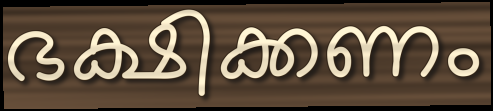
ഭക്ഷിക്കണം